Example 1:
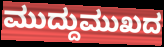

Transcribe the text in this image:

ಮುದ್ದುಮುಖದ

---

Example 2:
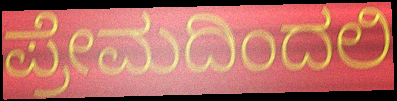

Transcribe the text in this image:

ಪ್ರೇಮದಿಂದಲಿ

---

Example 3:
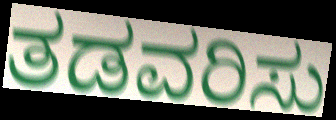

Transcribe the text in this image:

ತಡವರಿಸು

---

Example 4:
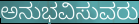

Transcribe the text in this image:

ಅನುಭವಿಸುವರು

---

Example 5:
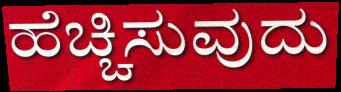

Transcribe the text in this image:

ಹೆಚ್ಚಿಸುವುದು